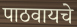
पाठवायचे